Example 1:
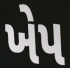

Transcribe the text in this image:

ખેપ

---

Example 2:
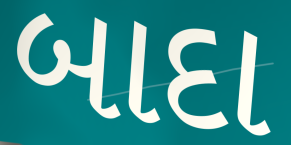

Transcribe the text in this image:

બાદા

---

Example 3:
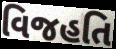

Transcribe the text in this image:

વિજહતિ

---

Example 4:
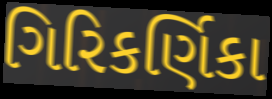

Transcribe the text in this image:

ગિરિકર્ણિકા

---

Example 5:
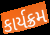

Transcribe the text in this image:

કાર્યક્રમ